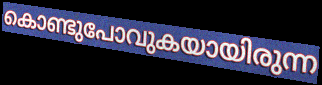
കൊണ്ടുപോവുകയായിരുന്ന